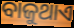
ବାଜୁଥାଏ